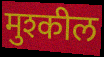
मुश्कील